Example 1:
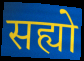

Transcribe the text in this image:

सह्यो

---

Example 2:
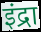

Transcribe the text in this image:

इंद्रा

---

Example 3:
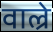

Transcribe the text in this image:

वाल्रे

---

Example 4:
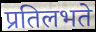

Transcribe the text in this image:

प्रतिलभते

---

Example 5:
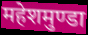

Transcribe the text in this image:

महेशमुण्डा